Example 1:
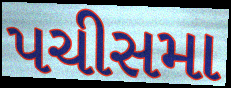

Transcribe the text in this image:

પચીસમા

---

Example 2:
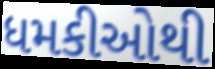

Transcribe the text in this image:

ધમકીઓથી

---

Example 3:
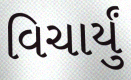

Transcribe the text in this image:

વિચાર્યું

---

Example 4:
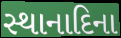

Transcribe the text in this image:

સ્થાનાદિના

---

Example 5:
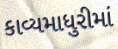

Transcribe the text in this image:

કાવ્યમાધુરીમાં